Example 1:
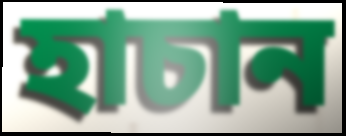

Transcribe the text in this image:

হাচান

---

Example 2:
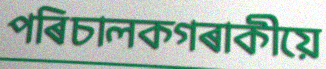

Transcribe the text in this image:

পৰিচালকগৰাকীয়ে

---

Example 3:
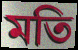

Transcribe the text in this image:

মতি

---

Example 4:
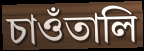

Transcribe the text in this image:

চাওঁতালি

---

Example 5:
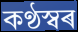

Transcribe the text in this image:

কণ্ঠস্বৰ